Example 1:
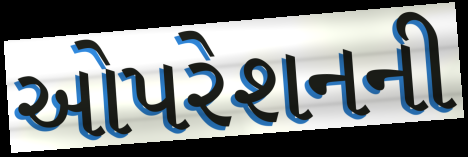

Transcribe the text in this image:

ઓપરેશનની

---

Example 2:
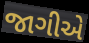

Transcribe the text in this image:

જાગીએ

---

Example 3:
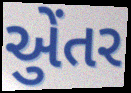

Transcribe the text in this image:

એુંતર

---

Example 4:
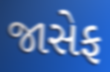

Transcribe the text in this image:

જાસેફ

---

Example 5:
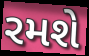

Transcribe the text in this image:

રમશે